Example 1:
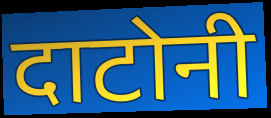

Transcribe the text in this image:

दाटोनी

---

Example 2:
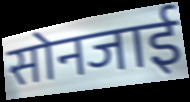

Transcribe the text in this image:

सोनजाई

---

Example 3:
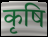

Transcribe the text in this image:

कृषि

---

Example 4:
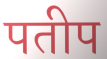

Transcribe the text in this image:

पतीप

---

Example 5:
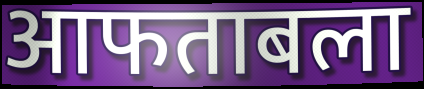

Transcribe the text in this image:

आफताबला